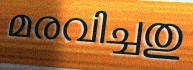
മരവിച്ചതു